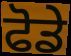
ਫੋਡੇ